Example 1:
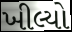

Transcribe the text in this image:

ખીલ્યો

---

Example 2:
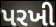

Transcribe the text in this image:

પરખી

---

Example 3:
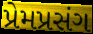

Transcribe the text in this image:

પ્રેમપ્રસંગ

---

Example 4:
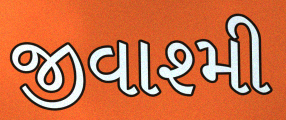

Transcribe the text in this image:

જીવાશ્મી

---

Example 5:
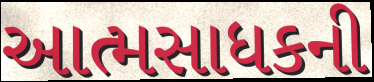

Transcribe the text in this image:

આત્મસાધકની